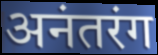
अनंतरंग